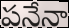
పనేనా